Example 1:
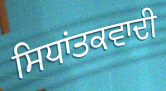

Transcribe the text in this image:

ਸਿਧਾਂਤਕਵਾਦੀ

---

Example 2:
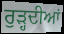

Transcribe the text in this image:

ਰੁੜ੍ਹਦੀਆਂ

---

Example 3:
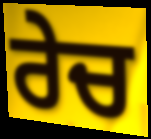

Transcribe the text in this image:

ਰੇਚ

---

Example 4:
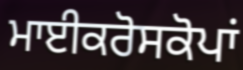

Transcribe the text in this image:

ਮਾਈਕਰੋਸਕੋਪਾਂ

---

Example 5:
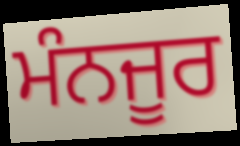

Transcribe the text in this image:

ਮੰਨਜੂਰ